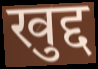
खुद्द